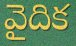
వైదిక